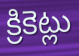
క్రికెట్లు